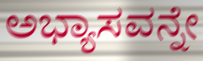
ಅಭ್ಯಾಸವನ್ನೇ